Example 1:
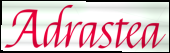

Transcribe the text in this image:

Adrastea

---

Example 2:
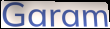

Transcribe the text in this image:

Garam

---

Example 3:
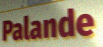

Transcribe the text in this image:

Palande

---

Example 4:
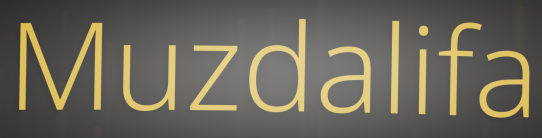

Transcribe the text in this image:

Muzdalifa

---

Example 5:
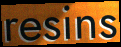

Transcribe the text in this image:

resins